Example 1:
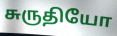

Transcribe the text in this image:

சுருதியோ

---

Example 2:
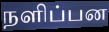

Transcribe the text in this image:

நளிப்பன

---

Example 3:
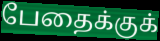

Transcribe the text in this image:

பேதைக்குக்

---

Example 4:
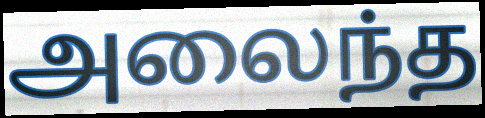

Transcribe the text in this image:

அலைந்த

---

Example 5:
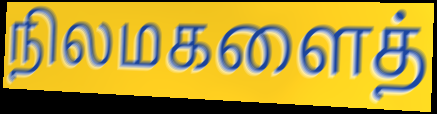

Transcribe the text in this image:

நிலமகளைத்